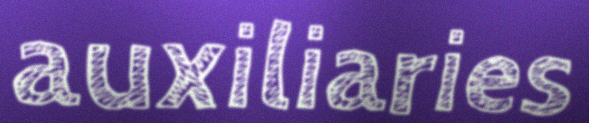
auxiliaries